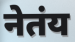
नेतंय